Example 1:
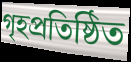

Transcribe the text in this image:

গৃহপ্রতিষ্ঠিত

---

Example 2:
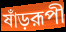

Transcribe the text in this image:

ষাঁড়রূপী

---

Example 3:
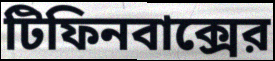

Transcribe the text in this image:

টিফিনবাক্সের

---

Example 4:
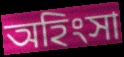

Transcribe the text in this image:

অহিংসা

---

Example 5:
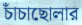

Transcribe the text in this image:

চাঁচাছোলার